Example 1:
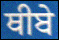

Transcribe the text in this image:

ਥੀਬੇ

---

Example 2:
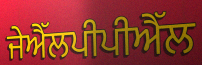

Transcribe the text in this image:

ਜੇਐੱਲਪੀਪੀਐੱਲ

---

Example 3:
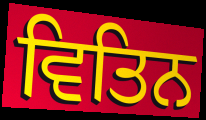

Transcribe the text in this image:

ਵਿਤਿਨ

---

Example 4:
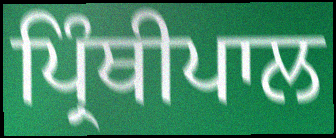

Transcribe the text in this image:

ਪ੍ਰਿੰਥੀਪਾਲ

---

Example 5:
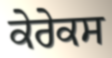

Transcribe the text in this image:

ਕੇਰੇਕਸ